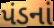
પંડનાં